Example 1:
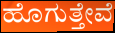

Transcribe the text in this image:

ಹೊಗುತ್ತೇವೆ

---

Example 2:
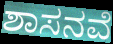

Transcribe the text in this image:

ಶಾಸನವೆ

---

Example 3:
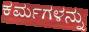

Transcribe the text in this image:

ಕರ್ಮಗಳನ್ನು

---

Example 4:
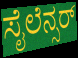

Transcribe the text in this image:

ಸೈಲೆನ್ಸರ್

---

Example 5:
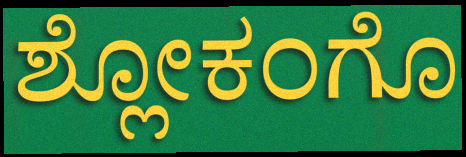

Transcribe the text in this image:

ಶ್ಲೋಕಂಗೊ